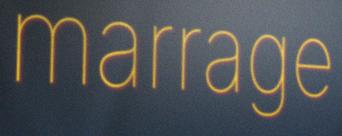
marrage